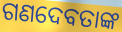
ଗଣଦେବତାଙ୍କ